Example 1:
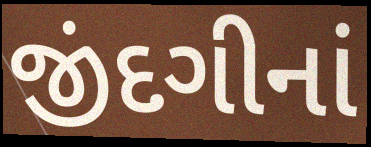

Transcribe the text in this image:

જીંદગીનાં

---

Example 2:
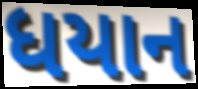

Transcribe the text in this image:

ધયાન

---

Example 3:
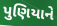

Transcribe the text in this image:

પુણિયાને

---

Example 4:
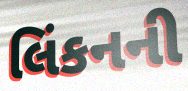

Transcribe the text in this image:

લિંકનની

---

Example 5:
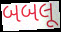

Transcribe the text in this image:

બબલૂ